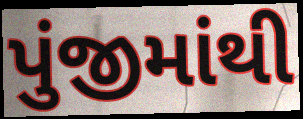
પુંજીમાંથી